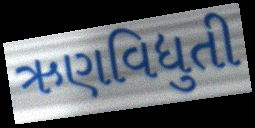
ઋણવિદ્યુતી